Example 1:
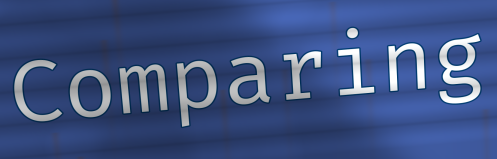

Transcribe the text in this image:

Comparing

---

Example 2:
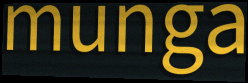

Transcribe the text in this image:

munga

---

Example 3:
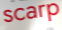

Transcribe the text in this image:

scarp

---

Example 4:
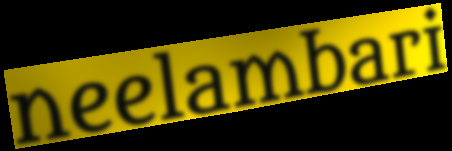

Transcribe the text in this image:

neelambari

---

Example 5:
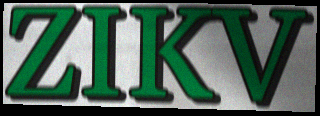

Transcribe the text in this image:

ZIKV